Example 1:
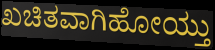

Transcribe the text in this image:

ಖಚಿತವಾಗಿಹೋಯ್ತು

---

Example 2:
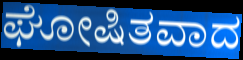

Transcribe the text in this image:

ಘೋಷಿತವಾದ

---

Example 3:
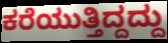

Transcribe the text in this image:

ಕರೆಯುತ್ತಿದ್ದದ್ದು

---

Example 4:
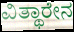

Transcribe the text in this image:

ವಿತ್ಥಾರೇನ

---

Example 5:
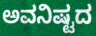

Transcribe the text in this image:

ಅವನಿಷ್ಟದ